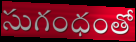
సుగంధంతో